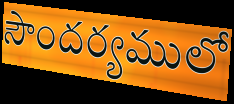
సౌందర్యములో